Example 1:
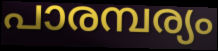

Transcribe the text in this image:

പാരമ്പര്യം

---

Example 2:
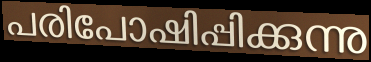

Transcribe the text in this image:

പരിപോഷിപ്പിക്കുന്നു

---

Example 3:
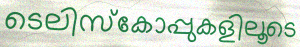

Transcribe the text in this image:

ടെലിസ്കോപ്പുകളിലൂടെ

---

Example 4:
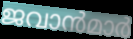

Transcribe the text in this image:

ജവാൻമാർ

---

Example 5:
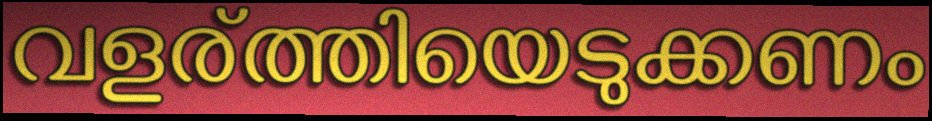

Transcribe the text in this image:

വളര്ത്തിയെടുക്കണം